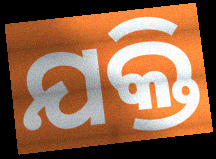
ଯକ୍ତି